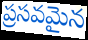
ప్రసవమైన